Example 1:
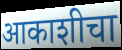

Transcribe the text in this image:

आकाशीचा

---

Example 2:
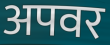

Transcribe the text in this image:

अपवर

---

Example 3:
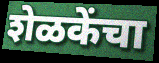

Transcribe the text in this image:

शेळकेंचा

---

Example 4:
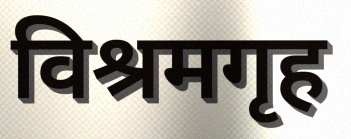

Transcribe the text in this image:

विश्रमगृह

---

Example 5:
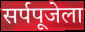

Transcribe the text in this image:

सर्पपूजेला